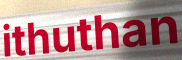
ithuthan